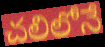
చలిలోనే